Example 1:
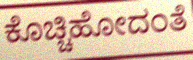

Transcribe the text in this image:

ಕೊಚ್ಚಿಹೋದಂತೆ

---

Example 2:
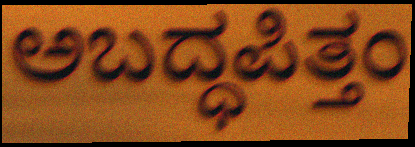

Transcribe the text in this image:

ಅಬದ್ಧಪಿತ್ತಂ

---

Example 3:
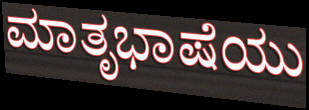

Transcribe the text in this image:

ಮಾತೃಭಾಷೆಯು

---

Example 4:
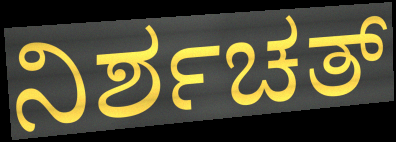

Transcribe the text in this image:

ನಿರ್ಶಚತ್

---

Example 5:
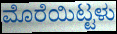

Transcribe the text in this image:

ಮೊರೆಯಿಟ್ಟಳು